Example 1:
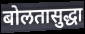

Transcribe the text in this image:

बोलतासुद्धा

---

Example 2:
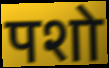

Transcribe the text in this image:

पशो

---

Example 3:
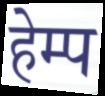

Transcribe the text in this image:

हेम्प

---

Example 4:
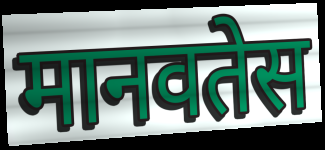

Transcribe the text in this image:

मानवतेस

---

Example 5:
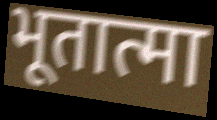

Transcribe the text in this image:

भूतात्मा